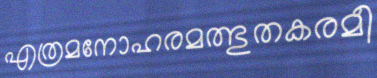
എത്രമനോഹരമത്ഭുതകരമീ